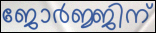
ജോർജ്ജിന്